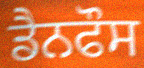
ਡੈਨਫੌਸ